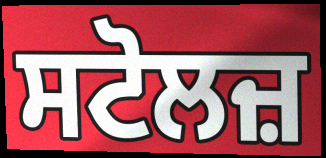
ਸਟੋਲਜ਼